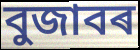
বুজাবৰ